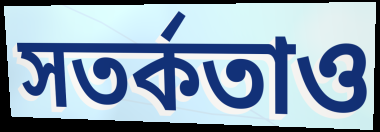
সতর্কতাও